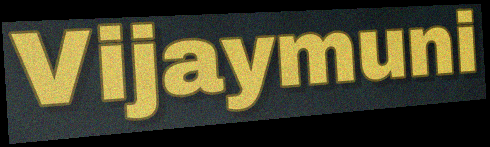
Vijaymuni